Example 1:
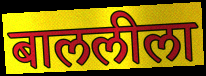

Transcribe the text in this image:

बाललीला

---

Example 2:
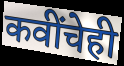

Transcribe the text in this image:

कवींचेही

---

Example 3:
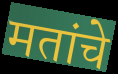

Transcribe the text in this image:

मतांचे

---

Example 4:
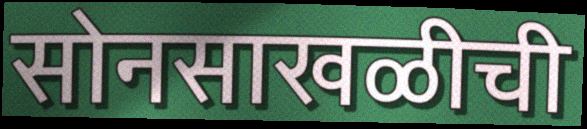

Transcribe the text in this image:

सोनसाखळीची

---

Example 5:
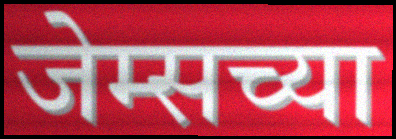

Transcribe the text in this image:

जेम्सच्या